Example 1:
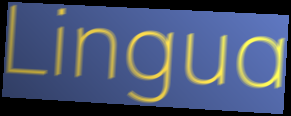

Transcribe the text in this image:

Lingua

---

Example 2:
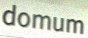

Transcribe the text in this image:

domum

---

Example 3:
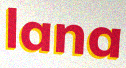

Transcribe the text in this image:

lana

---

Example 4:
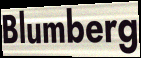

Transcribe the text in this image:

Blumberg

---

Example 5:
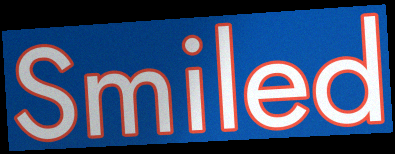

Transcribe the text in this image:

Smiled